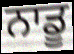
ਨਾਡੂ